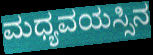
ಮಧ್ಯವಯಸ್ಸಿನ